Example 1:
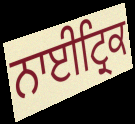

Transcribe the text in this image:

ਨਾਈਟ੍ਰਿਕ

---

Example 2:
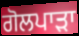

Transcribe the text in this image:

ਗੋਲਪਾੜਾ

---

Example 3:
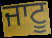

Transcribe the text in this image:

ਜਾਟੂ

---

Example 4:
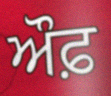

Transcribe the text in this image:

ਔਫ਼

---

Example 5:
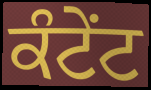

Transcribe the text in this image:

ਕੰਟੇਂਟ